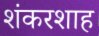
शंकरशाह